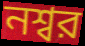
নশ্বর